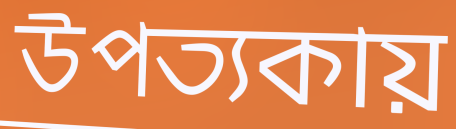
উপত্যকায়